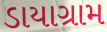
ડાયાગ્રામ